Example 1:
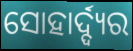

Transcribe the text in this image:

ସୋହାର୍ଦ୍ଦ୍ୟର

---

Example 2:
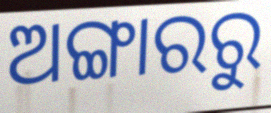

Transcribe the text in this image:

ଅଙ୍ଗାରରୁ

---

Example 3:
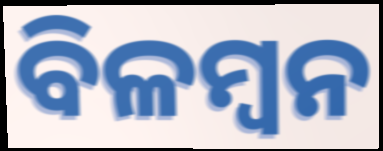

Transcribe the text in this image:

ବିଳମ୍ବନ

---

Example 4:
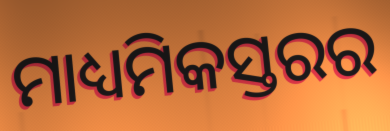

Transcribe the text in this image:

ମାଧ୍ୟମିକସ୍ତରର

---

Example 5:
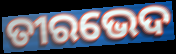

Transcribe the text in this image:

ତୀରଭେଦ